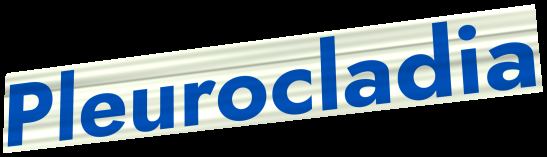
Pleurocladia